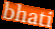
bhati